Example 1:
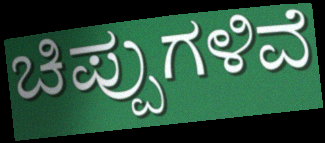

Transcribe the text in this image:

ಚಿಪ್ಪುಗಳಿವೆ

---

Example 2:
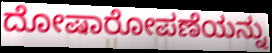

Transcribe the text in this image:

ದೋಷಾರೋಪಣೆಯನ್ನು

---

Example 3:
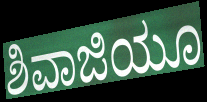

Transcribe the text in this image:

ಶಿವಾಜಿಯೂ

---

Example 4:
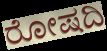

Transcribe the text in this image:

ರೋಷದಿ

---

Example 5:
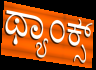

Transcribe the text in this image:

ಥ್ಯಾಂಕ್ಸ್